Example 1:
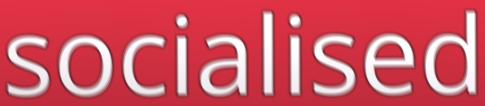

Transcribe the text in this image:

socialised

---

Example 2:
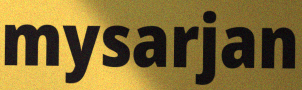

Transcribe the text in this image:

mysarjan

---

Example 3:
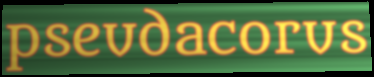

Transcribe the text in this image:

pseudacorus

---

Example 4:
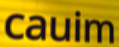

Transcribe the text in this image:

cauim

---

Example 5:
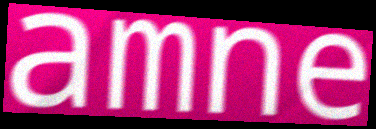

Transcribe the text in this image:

amne